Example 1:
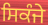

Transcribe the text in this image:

ਸਿਕੰਜੇ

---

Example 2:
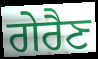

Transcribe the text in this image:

ਗੇਰੈਣ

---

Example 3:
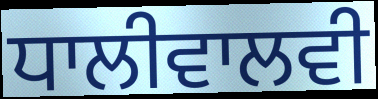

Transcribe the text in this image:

ਧਾਲੀਵਾਲਵੀ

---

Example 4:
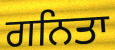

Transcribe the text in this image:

ਗਨਿਤਾ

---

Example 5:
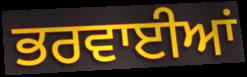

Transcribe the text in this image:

ਭਰਵਾਈਆਂ